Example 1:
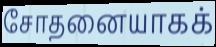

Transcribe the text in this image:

சோதனையாகக்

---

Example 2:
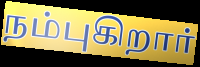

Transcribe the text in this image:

நம்புகிறார்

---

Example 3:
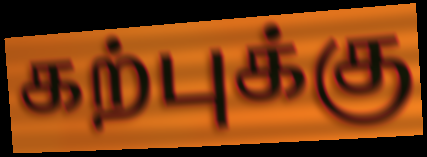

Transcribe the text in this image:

கற்புக்கு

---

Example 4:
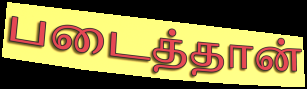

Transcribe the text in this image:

படைத்தான்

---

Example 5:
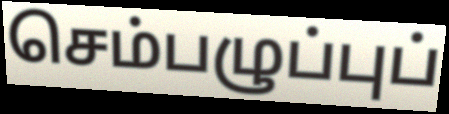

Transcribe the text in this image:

செம்பழுப்புப்